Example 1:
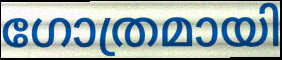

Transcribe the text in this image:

ഗോത്രമായി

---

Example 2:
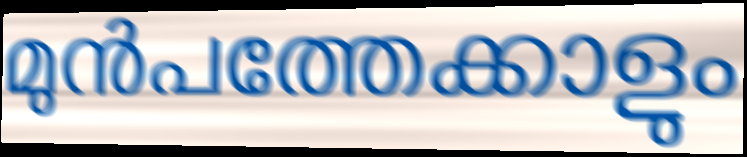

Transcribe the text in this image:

മുൻപത്തേക്കാളും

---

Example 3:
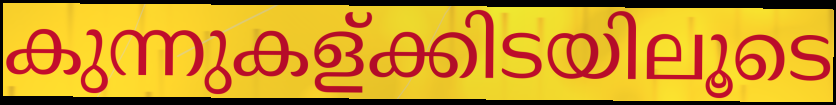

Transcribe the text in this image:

കുന്നുകള്ക്കിടയിലൂടെ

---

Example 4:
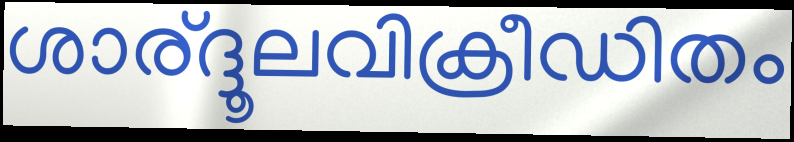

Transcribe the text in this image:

ശാര്ദ്ദൂലവിക്രീഡിതം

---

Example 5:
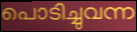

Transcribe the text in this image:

പൊടിച്ചുവന്ന